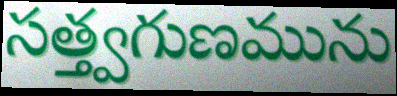
సత్త్వగుణమును